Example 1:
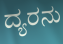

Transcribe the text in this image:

ದ್ಯರನು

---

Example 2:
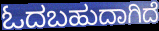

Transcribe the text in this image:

ಓದಬಹುದಾಗಿದೆ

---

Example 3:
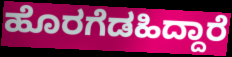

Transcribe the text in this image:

ಹೊರಗೆಡಹಿದ್ದಾರೆ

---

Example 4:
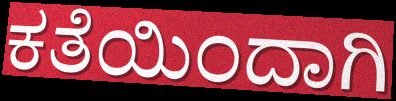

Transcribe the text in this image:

ಕತೆಯಿಂದಾಗಿ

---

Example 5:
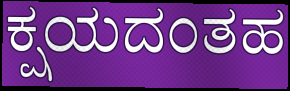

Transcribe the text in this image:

ಕ್ಷಯದಂತಹ